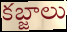
కబ్జాలు